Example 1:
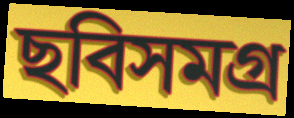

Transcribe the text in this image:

ছবিসমগ্র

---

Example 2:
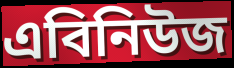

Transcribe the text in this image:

এবিনিউজ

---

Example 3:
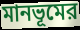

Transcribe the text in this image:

মানভূমের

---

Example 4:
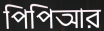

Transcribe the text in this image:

পিপিআর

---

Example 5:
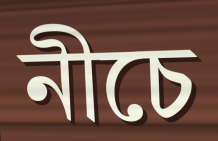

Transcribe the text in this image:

নীচে